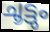
ചൂട്ടും